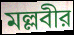
মল্লবীর